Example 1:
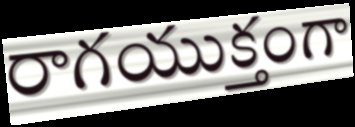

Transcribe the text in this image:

రాగయుక్తంగా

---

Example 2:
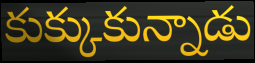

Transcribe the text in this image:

కుక్కుకున్నాడు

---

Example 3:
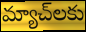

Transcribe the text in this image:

మ్యాచ్‌లకు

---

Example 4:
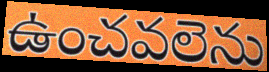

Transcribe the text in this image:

ఉంచవలెను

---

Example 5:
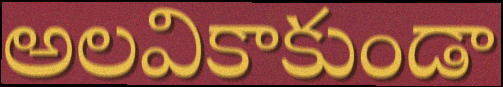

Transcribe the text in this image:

అలవికాకుండా